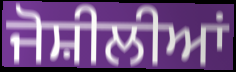
ਜੋਸ਼ੀਲੀਆਂ